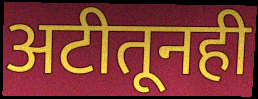
अटीतूनही